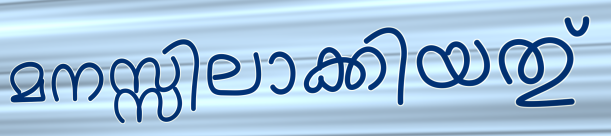
മനസ്സിലാക്കിയതു്